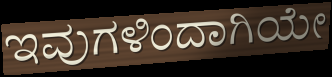
ಇವುಗಳಿಂದಾಗಿಯೇ